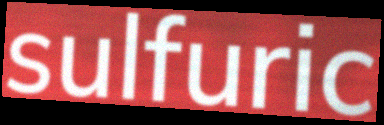
sulfuric